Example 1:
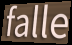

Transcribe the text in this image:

falle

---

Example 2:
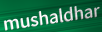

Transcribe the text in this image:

mushaldhar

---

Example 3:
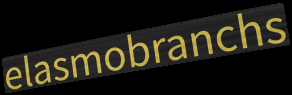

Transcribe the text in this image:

elasmobranchs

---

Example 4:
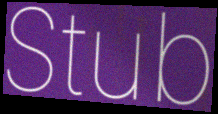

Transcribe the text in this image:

Stub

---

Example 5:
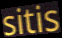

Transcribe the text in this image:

sitis